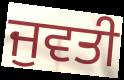
ਜੁਵਤੀ